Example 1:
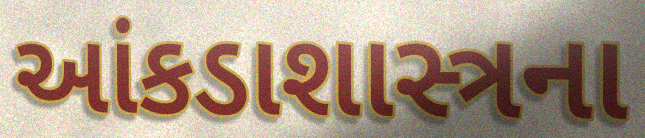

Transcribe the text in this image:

આંકડાશાસ્ત્રના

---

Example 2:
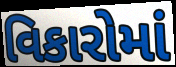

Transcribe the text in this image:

વિકારોમાં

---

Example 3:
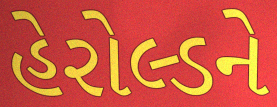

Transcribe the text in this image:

હેરોલ્ડને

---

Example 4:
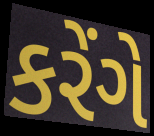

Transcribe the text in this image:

કરેંગે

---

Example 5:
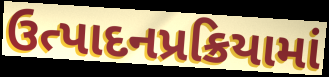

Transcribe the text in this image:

ઉત્પાદનપ્રક્રિયામાં